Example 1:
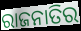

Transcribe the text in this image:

ରାଜନାତିର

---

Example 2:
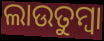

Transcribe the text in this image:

ଲାଉତୁମ୍ବା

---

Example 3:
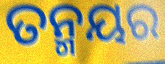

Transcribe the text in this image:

ତନ୍ମୟର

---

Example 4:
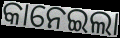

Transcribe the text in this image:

କାନେଇଲା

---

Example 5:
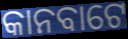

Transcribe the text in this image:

କାନବାଟେ